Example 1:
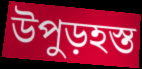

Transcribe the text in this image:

উপুড়হস্ত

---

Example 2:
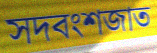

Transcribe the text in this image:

সদবংশজাত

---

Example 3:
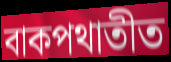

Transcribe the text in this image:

বাকপথাতীত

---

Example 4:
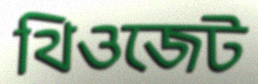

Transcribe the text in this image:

থিওজেট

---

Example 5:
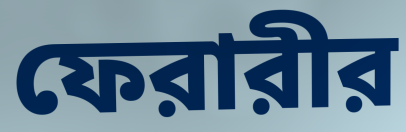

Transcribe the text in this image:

ফেরারীর